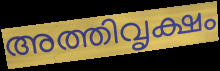
അത്തിവൃക്ഷം